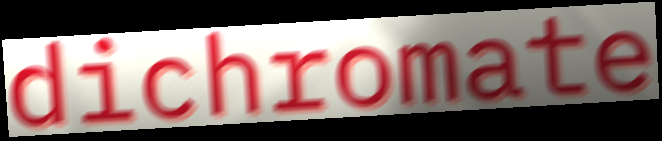
dichromate